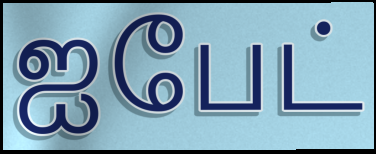
ஐபேட்